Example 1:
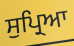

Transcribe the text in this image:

ਸੁਪ੍ਰਿਆ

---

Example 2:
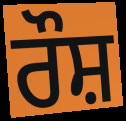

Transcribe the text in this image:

ਰੌਸ਼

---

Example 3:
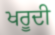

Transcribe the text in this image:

ਖਰੂਦੀ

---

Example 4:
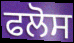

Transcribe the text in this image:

ਫਲੋਸ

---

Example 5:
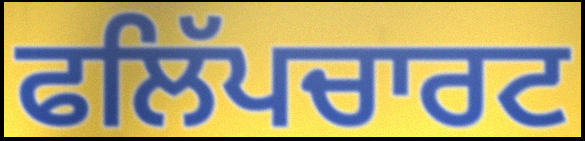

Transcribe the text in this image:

ਫਲਿੱਪਚਾਰਟ